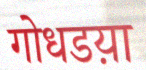
गोधडय़ा